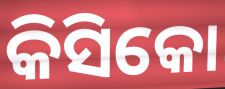
କିସିକୋ